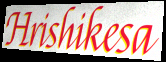
Hrishikesa